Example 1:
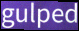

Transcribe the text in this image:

gulped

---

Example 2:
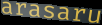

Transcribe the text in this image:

arasaru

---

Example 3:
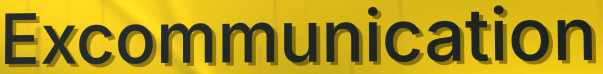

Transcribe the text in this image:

Excommunication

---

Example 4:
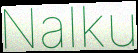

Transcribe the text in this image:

Nalku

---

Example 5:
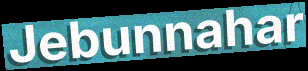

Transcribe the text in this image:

Jebunnahar